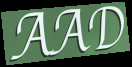
AAD